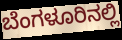
ಬೆಂಗಳೂರಿನಲ್ಲಿ